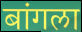
बांगला